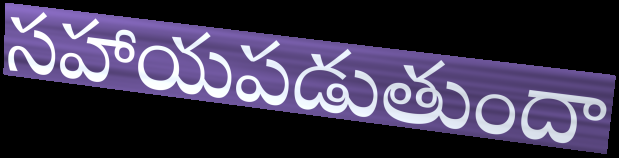
సహాయపడుతుందా